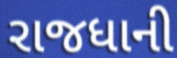
રાજધાની